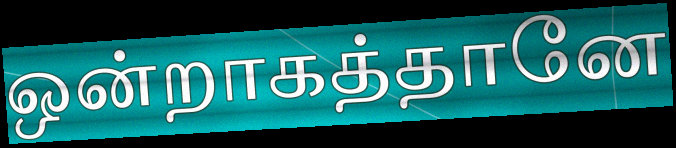
ஒன்றாகத்தானே